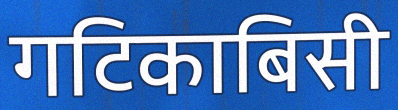
गटिकाबिसी